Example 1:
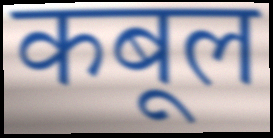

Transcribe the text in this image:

कबूल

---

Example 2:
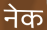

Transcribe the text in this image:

नेक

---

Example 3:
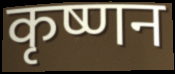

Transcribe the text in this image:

कृष्णन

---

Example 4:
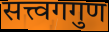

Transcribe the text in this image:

सत्त्वगगुण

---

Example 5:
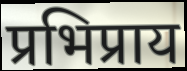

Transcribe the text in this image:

प्रभिप्राय